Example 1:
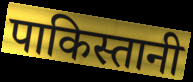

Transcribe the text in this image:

पाकिस्तानी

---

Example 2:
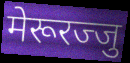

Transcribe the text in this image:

मेरूरज्जु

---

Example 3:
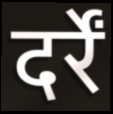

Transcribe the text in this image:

दर्रें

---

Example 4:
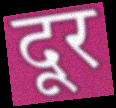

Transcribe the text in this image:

दूर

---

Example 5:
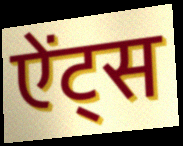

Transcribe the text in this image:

ऐंट्स